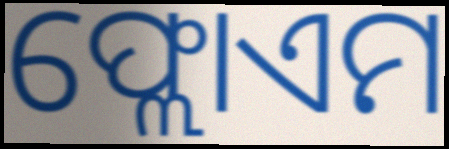
ଫ୍ଲୋଏମ